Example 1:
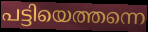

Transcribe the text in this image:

പട്ടിയെത്തന്നെ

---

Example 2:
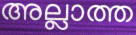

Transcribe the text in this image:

അല്ലാത്ത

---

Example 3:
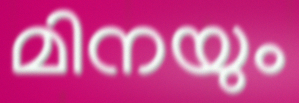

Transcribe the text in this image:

മിനയും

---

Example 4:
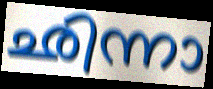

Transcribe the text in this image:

ഛിന്നാ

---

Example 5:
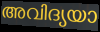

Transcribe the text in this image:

അവിദ്യയാ